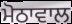
ਮੋਠਾਵਾਲ